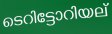
ടെറിട്ടോറിയല്